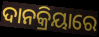
ଦାନକ୍ରିୟାରେ